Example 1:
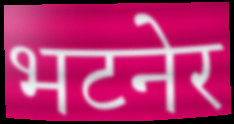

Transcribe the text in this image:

भटनेर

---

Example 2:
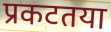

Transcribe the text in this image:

प्रकटतया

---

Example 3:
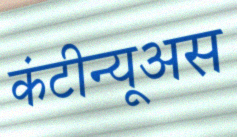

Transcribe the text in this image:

कंटीन्यूअस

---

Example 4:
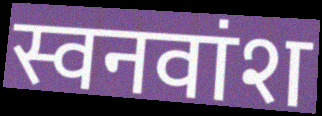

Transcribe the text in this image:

स्वनवांश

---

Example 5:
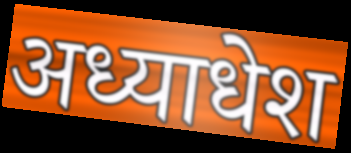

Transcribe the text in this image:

अध्याधेश